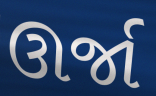
ઊર્જા